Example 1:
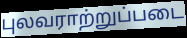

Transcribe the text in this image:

புலவராற்றுப்படை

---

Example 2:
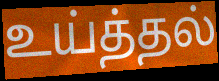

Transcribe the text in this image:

உய்த்தல்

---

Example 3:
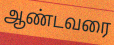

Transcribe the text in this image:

ஆண்டவரை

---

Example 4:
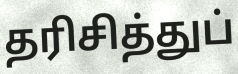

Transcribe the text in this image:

தரிசித்துப்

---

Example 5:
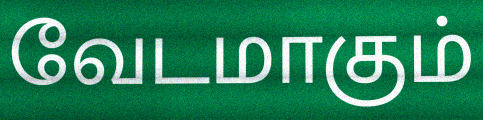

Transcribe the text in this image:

வேடமாகும்